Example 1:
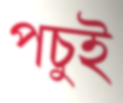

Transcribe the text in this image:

পচুই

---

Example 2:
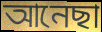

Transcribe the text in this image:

আনেছা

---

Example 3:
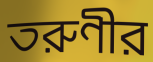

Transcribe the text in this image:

তরুণীর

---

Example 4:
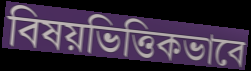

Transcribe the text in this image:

বিষয়ভিত্তিকভাবে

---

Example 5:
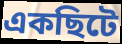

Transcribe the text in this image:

একছিটে